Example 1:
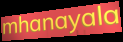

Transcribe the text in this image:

mhanayala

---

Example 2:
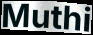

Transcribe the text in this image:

Muthi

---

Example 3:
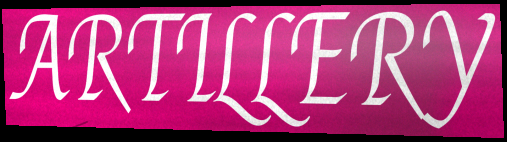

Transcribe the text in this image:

ARTILLERY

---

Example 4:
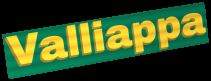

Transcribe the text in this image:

Valliappa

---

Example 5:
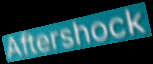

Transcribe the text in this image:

Aftershock